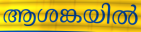
ആശങ്കയിൽ